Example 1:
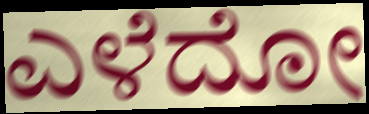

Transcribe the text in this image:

ಎಳೆದೋ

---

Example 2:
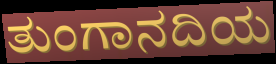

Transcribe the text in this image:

ತುಂಗಾನದಿಯ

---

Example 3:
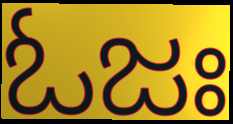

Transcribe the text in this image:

ಓಜಃ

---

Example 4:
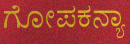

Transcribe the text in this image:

ಗೋಪಕನ್ಯಾ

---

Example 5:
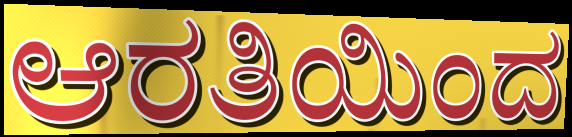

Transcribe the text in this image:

ಆರತಿಯಿಂದ